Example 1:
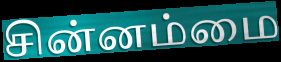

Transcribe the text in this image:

சின்னம்மை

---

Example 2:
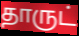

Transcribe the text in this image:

தாருட்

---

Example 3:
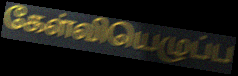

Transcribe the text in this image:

கேள்வியெழுப்ப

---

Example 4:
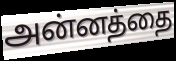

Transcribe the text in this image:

அன்னத்தை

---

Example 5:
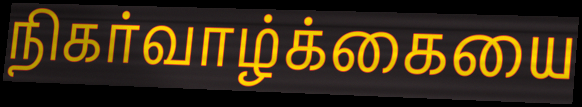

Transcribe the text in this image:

நிகர்வாழ்க்கையை